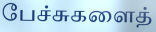
பேச்சுகளைத்